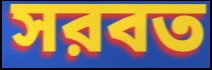
সরবত